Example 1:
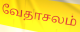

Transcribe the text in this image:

வேதாசலம்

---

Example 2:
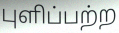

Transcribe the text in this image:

புளிப்பற்ற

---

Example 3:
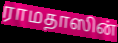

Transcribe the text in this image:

ராமதாஸின்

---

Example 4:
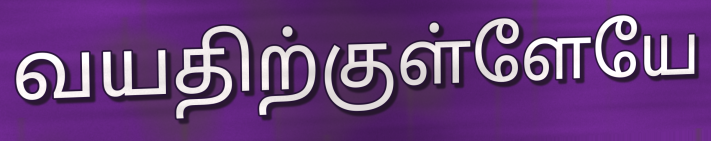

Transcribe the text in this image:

வயதிற்குள்ளேயே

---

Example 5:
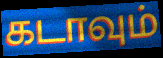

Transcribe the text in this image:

கடாவும்